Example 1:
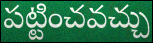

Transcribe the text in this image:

పట్టించవచ్చు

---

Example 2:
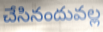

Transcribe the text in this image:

చేసినందువల్ల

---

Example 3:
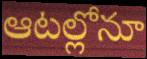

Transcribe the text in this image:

ఆటల్లోనూ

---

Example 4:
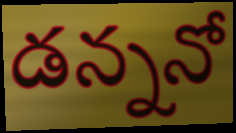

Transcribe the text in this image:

డన్ననో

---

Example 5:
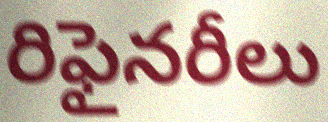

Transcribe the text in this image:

రిఫైనరీలు